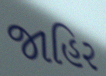
જાહિર